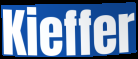
Kieffer